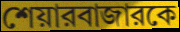
শেয়ারবাজারকে